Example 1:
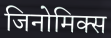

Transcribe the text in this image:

जिनोमिक्स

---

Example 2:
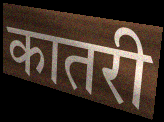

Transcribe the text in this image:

कातरी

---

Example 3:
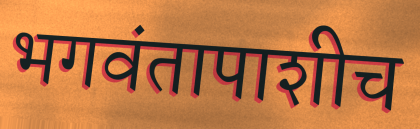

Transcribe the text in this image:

भगवंतापाशीच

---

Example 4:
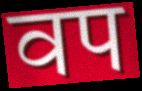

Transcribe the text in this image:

वप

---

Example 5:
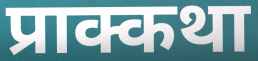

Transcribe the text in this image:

प्राक्कथा